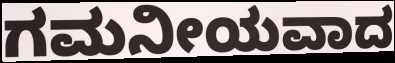
ಗಮನೀಯವಾದ